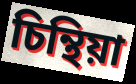
চিন্থিয়া